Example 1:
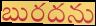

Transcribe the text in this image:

బురదను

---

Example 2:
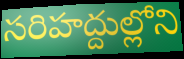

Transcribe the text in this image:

సరిహద్దుల్లోని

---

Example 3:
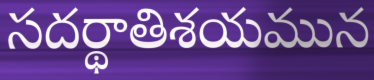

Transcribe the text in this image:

సదర్థాతిశయమున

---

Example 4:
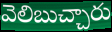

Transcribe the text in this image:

వెలిబుచ్చారు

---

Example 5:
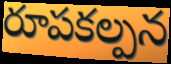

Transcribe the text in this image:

రూపకల్పన